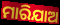
ମାରିଯାଅ